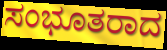
ಸಂಭೂತರಾದ